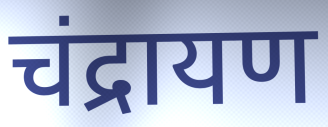
चंद्रायण